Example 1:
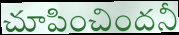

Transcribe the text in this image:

చూపించిందనీ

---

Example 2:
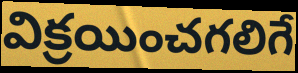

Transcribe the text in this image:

విక్రయించగలిగే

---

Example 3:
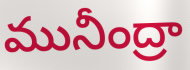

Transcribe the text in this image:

మునీంద్రా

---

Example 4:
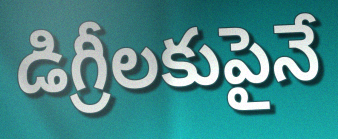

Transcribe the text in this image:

డిగ్రీలకుపైనే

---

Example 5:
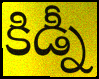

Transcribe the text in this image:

కిడ్నీ